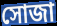
সোজা